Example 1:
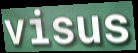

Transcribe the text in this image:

visus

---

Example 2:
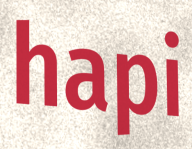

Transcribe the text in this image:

hapi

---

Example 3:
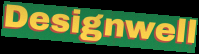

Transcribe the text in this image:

Designwell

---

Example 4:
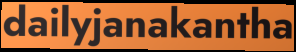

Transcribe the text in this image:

dailyjanakantha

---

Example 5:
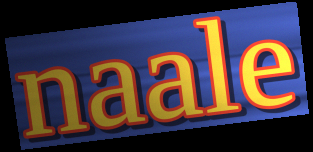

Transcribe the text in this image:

naale